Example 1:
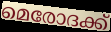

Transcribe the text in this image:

മെരോദക്ക്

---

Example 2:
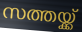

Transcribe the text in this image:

സത്തയ്ക്ക്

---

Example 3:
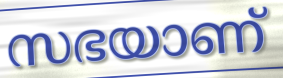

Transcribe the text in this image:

സഭയാണ്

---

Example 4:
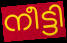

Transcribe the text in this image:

നീട്ടി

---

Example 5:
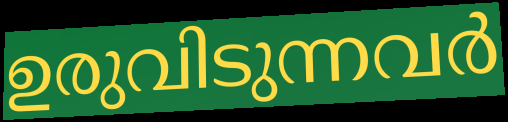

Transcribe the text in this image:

ഉരുവിടുന്നവർ